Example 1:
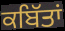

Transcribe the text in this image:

ਕਬਿੱਤਾਂ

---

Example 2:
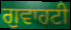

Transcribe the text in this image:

ਗੁਵਾਹਟੀ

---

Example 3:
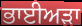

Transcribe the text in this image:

ਭਾਈਅੜਾ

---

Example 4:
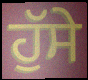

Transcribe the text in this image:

ਹੁੱਸੇ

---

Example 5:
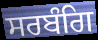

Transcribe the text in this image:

ਸਰਬੰਗਿ